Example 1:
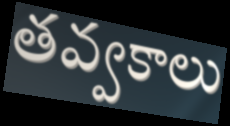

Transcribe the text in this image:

తవ్వకాలు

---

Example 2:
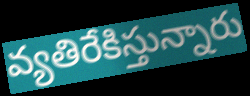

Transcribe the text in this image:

వ్యతిరేకిస్తున్నారు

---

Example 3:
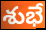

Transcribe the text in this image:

శుభే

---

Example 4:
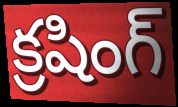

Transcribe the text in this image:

క్రషింగ్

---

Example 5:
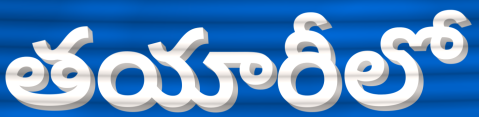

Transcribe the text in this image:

తయారీలో